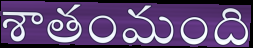
శాతంమంది